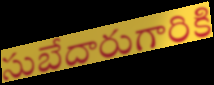
సుబేదారుగారికి